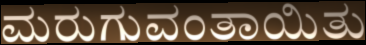
ಮರುಗುವಂತಾಯಿತು